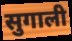
सुगाली